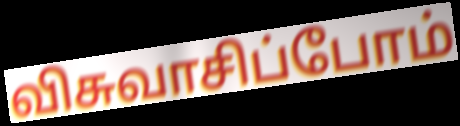
விசுவாசிப்போம்